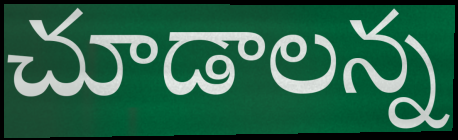
చూడాలన్న